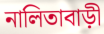
নালিতাবাড়ী